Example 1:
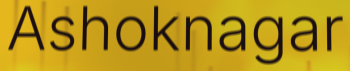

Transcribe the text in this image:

Ashoknagar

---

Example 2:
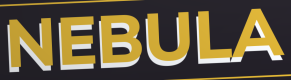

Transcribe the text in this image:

NEBULA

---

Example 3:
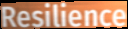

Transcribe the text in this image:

Resilience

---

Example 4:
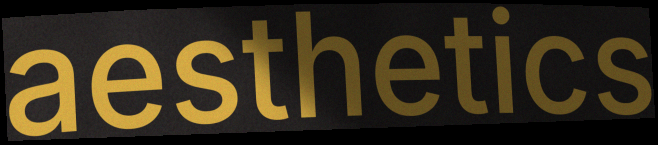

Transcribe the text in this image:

aesthetics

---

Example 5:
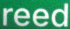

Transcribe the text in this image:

reed